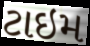
ટાઇમ